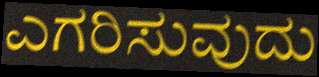
ಎಗರಿಸುವುದು